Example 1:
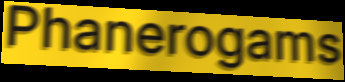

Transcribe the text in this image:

Phanerogams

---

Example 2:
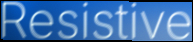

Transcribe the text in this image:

Resistive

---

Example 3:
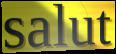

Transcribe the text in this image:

salut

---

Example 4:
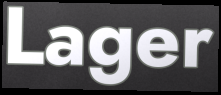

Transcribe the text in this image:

Lager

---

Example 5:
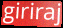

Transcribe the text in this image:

giriraj